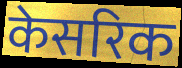
केसरिक